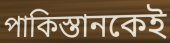
পাকিস্তানকেই